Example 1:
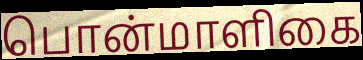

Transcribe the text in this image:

பொன்மாளிகை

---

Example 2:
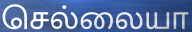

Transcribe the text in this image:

செல்லையா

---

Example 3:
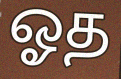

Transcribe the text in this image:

ஓத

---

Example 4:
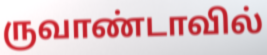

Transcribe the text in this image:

ருவாண்டாவில்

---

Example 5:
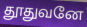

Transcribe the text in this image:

தூதுவனே